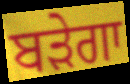
ਬੜੇਗਾ